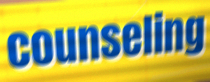
counseling